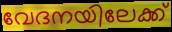
വേദനയിലേക്ക്